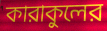
কারাকুলের